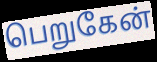
பெறுகேன்